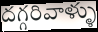
దగ్గరివాళ్ళు